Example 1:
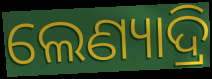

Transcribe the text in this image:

ଲେଣ୍ୟାଦ୍ରି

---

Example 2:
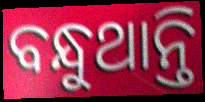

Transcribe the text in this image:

ବନ୍ଧୁଥାନ୍ତି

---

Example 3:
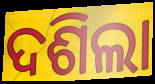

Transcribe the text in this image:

ଦଶିଲା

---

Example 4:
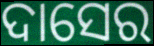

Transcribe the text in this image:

ଦାସେର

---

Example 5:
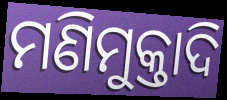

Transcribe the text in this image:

ମଣିମୁକ୍ତାଦି